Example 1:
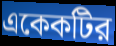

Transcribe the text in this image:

একেকটির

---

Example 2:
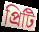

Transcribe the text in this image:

প্রিটি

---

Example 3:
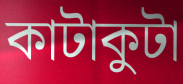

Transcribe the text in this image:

কাটাকুটা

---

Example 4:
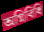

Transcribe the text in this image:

অগ্নিবিধি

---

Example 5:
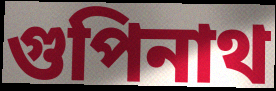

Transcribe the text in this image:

গুপিনাথ